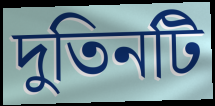
দুতিনটি